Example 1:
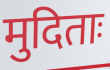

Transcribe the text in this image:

मुदिताः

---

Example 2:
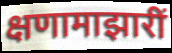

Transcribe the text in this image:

क्षणामाझारीं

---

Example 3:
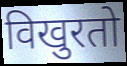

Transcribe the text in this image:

विखुरतो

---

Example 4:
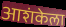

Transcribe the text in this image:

आशंकेला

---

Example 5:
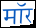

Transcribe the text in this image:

मॉर